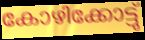
കോഴിക്കോട്ടു്